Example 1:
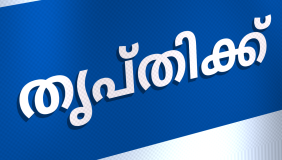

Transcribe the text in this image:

തൃപ്തിക്ക്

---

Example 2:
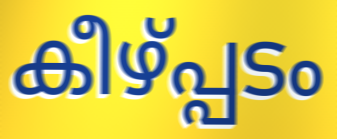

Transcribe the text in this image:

കീഴ്പ്പടം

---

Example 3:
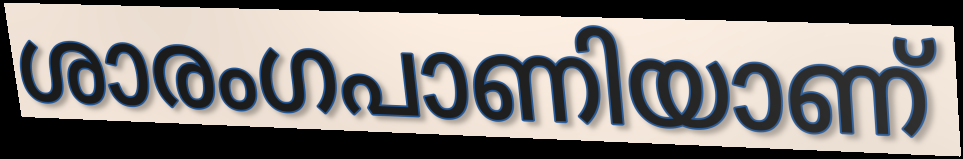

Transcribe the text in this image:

ശാരംഗപാണിയാണ്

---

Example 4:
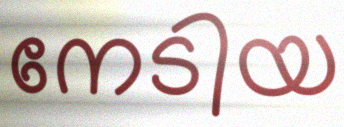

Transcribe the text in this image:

നേടിയ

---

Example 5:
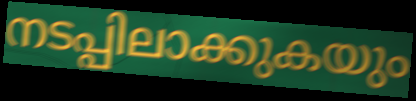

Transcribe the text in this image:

നടപ്പിലാക്കുകയും